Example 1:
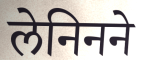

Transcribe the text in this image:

लेनिनने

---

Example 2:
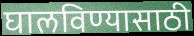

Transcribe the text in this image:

घालविण्यासाठी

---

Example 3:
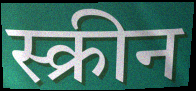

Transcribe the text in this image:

स्क्रीन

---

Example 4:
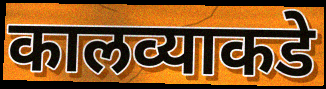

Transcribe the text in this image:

कालव्याकडे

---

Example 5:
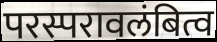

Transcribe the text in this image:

परस्परावलंबित्व